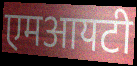
एमआयटी